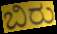
ಬಿರು